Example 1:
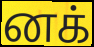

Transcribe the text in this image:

னக்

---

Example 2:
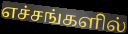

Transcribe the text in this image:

எச்சங்களில்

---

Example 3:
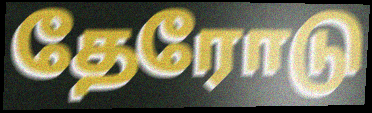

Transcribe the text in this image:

தேரோடு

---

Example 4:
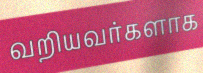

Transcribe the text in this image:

வறியவர்களாக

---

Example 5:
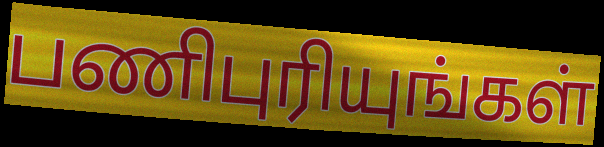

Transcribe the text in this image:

பணிபுரியுங்கள்